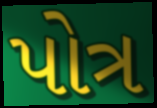
પોત્ર